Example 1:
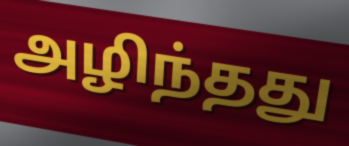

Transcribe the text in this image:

அழிந்தது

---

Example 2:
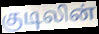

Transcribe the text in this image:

குடிலின்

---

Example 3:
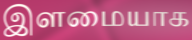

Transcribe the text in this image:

இளமையாக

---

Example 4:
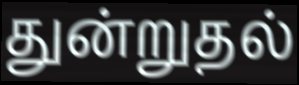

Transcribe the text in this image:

துன்றுதல்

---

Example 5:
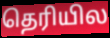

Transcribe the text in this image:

தெரியில